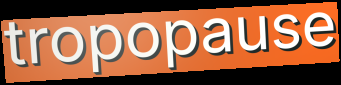
tropopause